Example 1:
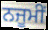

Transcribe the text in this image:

ਨਜੂਮੀਂ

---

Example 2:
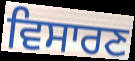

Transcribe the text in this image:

ਵਿਸਾਰਣ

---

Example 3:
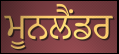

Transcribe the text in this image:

ਮੂਨਲੈਂਡਰ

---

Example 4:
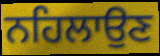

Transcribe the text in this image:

ਨਹਿਲਾਉਣ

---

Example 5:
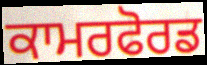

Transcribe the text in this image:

ਕਾਮਰਫੋਰਡ